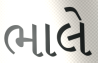
ભાલે